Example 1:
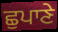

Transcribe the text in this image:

ਛੁਪਾਣੇ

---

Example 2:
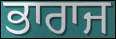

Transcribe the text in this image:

ਭਾਰਾਜ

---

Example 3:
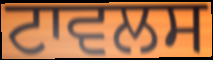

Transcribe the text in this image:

ਟਾਵਲਸ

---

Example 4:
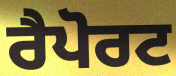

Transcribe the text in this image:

ਰੈਪੋਰਟ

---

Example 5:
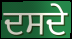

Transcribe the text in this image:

ਦਸਦੇ